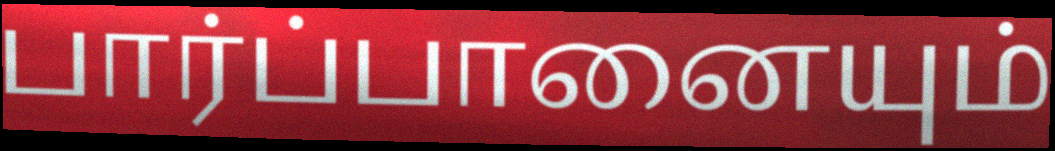
பார்ப்பானையும்